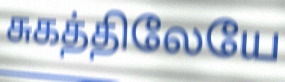
சுகத்திலேயே